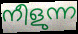
നീളുന്ന